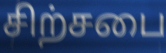
சிற்சபை